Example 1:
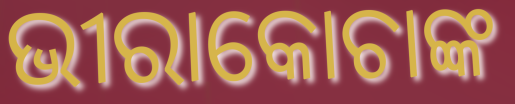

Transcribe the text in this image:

ଭୀରାକୋଚାଙ୍କ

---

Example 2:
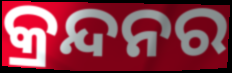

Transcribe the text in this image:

କ୍ରନ୍ଦନର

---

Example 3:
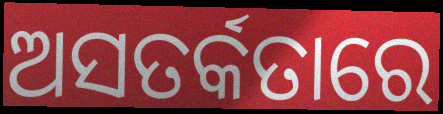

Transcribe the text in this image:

ଅସତର୍କତାରେ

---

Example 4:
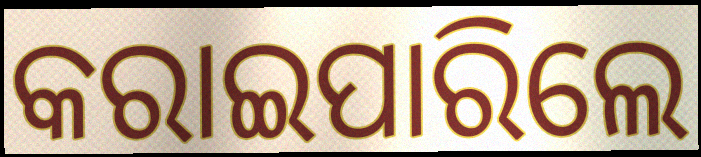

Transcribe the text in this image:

କରାଇପାରିଲେ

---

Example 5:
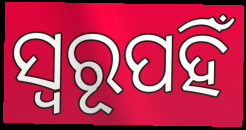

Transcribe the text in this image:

ସ୍ୱରୂପହିଁ